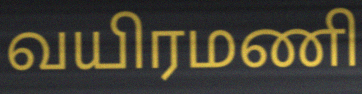
வயிரமணி